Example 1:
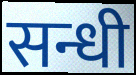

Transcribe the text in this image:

सन्धी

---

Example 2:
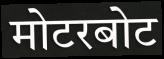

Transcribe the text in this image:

मोटरबोट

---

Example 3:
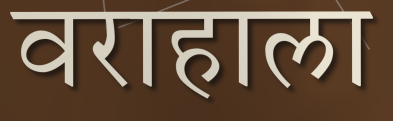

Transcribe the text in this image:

वराहाला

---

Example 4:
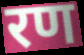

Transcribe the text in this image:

रण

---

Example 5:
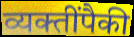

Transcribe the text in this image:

व्यक्‍तींपैकी